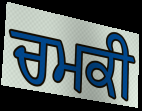
ਚਮਕੀ